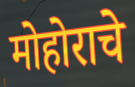
मोहोराचे